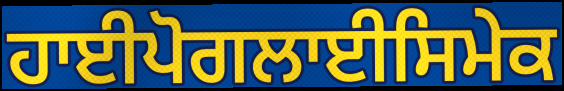
ਹਾਈਪੋਗਲਾਈਸਿਮੇਕ